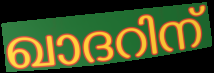
ഖാദറിന്